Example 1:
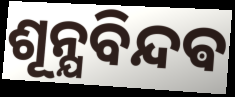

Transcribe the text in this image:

ଶୂନ୍ଯବିନ୍ଦଵ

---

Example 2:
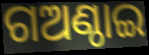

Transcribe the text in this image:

ଗଅଣ୍ଠାଇ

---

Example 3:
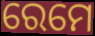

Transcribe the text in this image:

ରେମେ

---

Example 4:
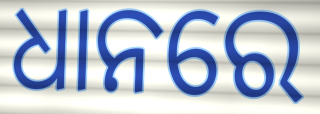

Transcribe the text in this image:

ଧାନରେ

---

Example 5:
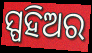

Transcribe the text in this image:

ସ୍ପହିଅର